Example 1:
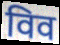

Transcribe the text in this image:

विव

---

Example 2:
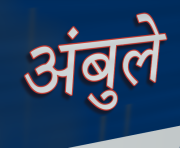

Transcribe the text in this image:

अंबुले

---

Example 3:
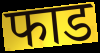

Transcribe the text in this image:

फाड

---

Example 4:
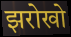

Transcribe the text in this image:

झरोखो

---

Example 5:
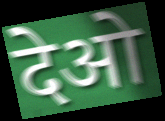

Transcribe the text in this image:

देओ